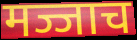
मज्जाच